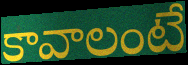
కావాలంటే